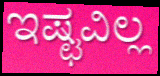
ಇಷ್ಟವಿಲ್ಲ